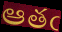
ఆతఁ